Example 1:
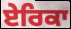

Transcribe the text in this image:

ਏਰਿਕਾ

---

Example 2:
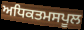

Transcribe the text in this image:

ਅਧਿਕਤਮਸਪੂਲ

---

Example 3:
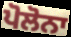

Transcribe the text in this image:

ਪੋਲੋਨਾ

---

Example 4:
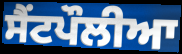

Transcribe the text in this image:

ਸੈਂਟਪੌਲੀਆ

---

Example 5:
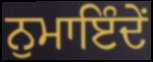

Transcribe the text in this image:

ਨੁਮਾਇੰਦੇਂ